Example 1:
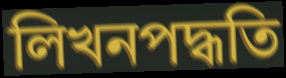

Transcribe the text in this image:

লিখনপদ্ধতি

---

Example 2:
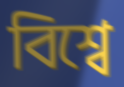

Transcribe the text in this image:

বিশ্বে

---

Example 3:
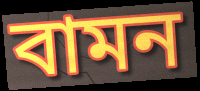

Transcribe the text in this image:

বামন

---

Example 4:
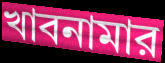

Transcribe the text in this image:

খাবনামার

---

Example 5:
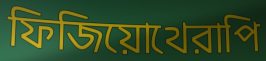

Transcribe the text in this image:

ফিজিয়োথেরাপি